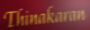
Thinakaran